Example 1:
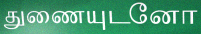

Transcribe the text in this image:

துணையுடனோ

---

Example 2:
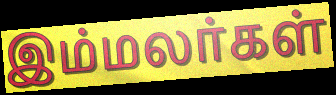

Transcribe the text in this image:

இம்மலர்கள்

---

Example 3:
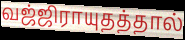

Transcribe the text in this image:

வஜ்ஜிராயுதத்தால்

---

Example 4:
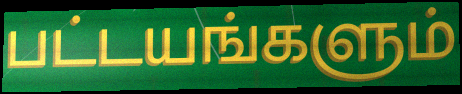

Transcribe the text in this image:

பட்டயங்களும்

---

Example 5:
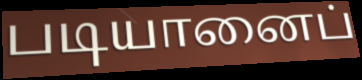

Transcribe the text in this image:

படியானைப்